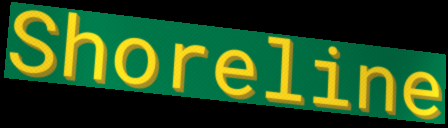
Shoreline